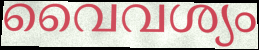
വൈവശ്യം